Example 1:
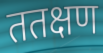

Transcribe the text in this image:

ततक्षण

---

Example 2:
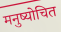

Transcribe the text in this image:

मनुष्योचित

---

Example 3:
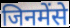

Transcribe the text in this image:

जिनमेंसे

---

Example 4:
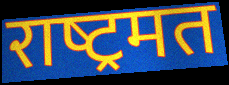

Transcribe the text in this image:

राष्ट्रमत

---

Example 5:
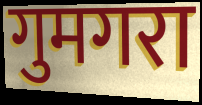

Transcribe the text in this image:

गुमगरा